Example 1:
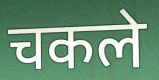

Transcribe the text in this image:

चकले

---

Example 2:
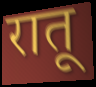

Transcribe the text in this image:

रातू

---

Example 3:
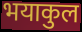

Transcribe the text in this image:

भयाकुल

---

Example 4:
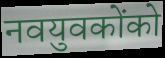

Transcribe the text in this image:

नवयुवकोंको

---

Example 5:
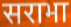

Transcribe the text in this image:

सराभा